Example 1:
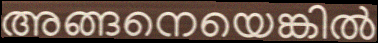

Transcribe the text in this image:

അങ്ങനെയെങ്കിൽ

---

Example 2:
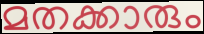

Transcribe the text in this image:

മതക്കാരും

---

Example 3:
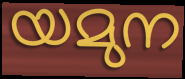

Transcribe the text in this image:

യമുന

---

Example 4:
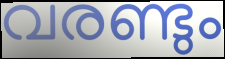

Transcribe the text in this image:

വരണ്ടും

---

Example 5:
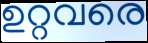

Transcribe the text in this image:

ഉറ്റവരെ